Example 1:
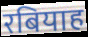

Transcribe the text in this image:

रबियाह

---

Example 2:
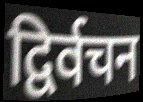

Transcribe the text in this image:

द्विर्वचन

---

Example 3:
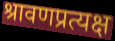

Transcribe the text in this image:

श्रावणप्रत्यक्ष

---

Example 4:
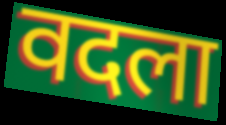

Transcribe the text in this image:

वदला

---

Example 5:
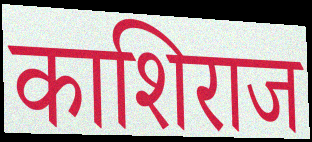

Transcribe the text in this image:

काशिराज